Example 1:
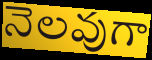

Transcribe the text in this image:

నెలవుగా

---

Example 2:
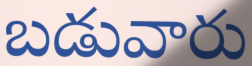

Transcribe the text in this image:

బడువారు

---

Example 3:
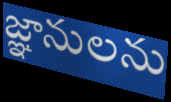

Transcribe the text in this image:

జ్ఞానులను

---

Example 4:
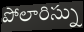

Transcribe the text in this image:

పోలారిస్ను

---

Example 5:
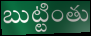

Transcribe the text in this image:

బుట్టింతు